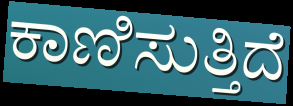
ಕಾಣಿಸುತ್ತಿದೆ